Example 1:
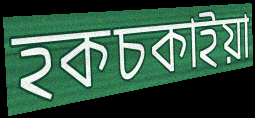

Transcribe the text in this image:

হকচকাইয়া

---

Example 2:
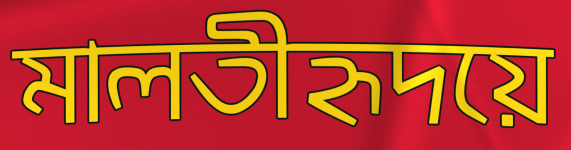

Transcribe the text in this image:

মালতীহৃদয়ে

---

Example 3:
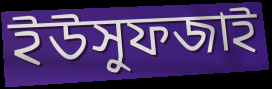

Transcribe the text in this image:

ইউসুফজাই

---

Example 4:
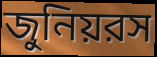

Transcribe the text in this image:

জুনিয়রস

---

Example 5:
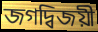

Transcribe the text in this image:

জগদ্বিজয়ী